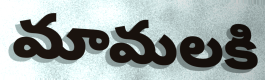
మామలకి